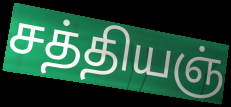
சத்தியஞ்